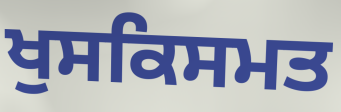
ਖੁਸਕਿਸਮਤ